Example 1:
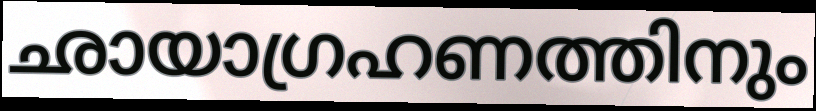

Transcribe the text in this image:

ഛായാഗ്രഹണത്തിനും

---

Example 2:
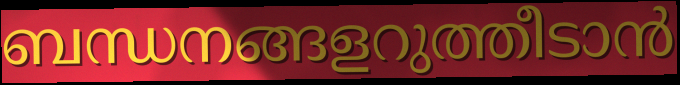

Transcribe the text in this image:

ബന്ധനങ്ങളറുത്തീടാൻ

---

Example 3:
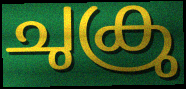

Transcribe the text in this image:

ചുക്രു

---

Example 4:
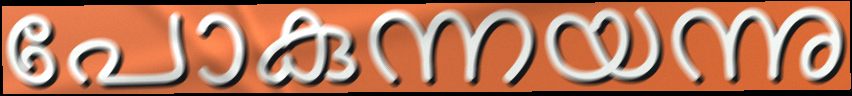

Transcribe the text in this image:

പോകുന്നയന്നു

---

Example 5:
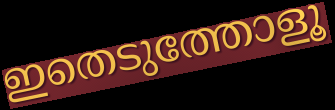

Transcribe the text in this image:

ഇതെടുത്തോളൂ